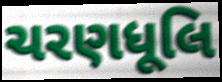
ચરણધૂલિ